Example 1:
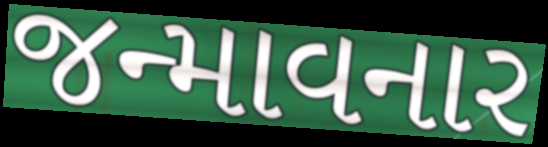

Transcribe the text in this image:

જન્માવનાર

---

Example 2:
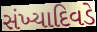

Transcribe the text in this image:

સંખ્યાદિવડે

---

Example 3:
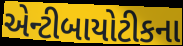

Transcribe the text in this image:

એન્ટીબાયોટીકના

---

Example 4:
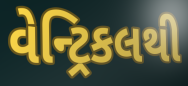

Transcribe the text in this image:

વેન્ટ્રિકલથી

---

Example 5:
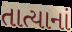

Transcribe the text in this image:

તાત્યાનાં